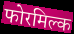
फोरमिल्क